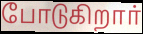
போடுகிறார்